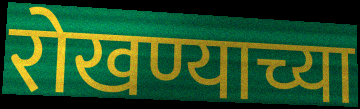
रोखण्याच्या